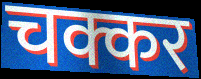
चक्कर